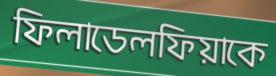
ফিলাডেলফিয়াকে